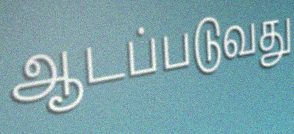
ஆடப்படுவது